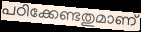
പഠിക്കേണ്ടതുമാണ്